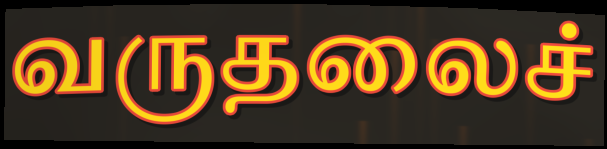
வருதலைச்